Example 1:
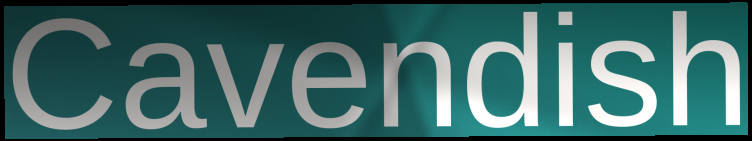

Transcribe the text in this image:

Cavendish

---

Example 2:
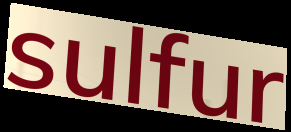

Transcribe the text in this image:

sulfur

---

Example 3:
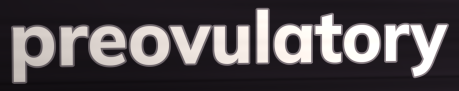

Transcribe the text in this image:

preovulatory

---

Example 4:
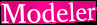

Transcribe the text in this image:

Modeler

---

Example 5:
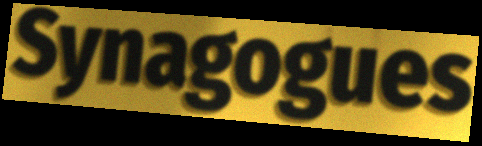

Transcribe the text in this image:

Synagogues